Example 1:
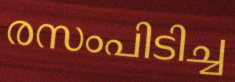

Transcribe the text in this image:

രസംപിടിച്ച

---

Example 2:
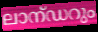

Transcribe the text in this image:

ലാന്ഡറും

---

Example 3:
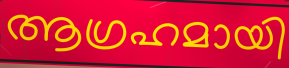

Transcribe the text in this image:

ആഗ്രഹമായി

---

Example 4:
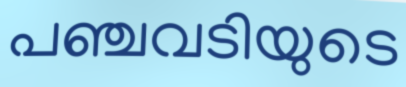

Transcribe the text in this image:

പഞ്ചവടിയുടെ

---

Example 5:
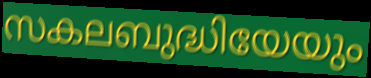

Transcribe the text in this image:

സകലബുദ്ധിയേയും